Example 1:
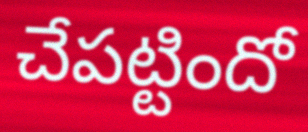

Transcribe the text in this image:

చేపట్టిందో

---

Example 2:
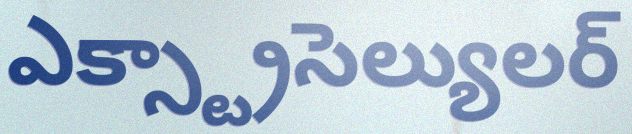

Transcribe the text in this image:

ఎక్స్ట్రాసెల్యులర్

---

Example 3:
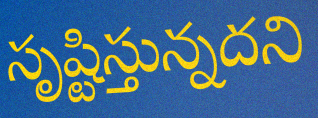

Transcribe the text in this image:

సృష్టిస్తున్నదని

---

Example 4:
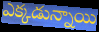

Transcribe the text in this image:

ఎక్కడున్నాయి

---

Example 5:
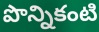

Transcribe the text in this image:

పొన్నికంటి